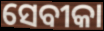
ସେବୀକା